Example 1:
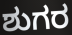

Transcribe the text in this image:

ಶುಗರ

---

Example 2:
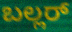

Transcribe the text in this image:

ಬಲ್ಲರ್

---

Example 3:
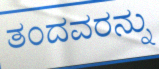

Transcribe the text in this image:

ತಂದವರನ್ನು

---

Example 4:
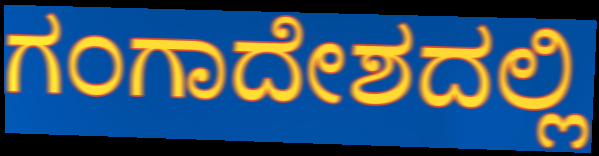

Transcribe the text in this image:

ಗಂಗಾದೇಶದಲ್ಲಿ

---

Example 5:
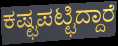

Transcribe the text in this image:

ಕಷ್ಟಪಟ್ಟಿದ್ದಾರೆ